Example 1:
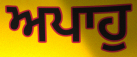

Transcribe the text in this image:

ਅਪਾਹੁ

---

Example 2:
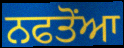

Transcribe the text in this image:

ਨਫਤੋਂਆ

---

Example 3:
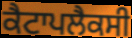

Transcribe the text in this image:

ਕੈਟਾਪਲੈਕਸੀ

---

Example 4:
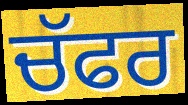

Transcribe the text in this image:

ਚੱਫਰ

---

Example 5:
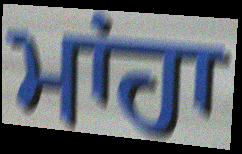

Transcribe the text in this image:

ਮਾਂਹਾ